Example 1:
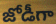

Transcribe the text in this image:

జోడీగా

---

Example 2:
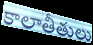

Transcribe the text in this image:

కాలాతీతులు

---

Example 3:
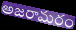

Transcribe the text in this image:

అజరామరం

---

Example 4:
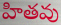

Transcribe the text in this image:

హితవు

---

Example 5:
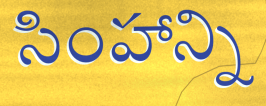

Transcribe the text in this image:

సింహాన్ని